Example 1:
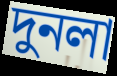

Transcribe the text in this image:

দুনলা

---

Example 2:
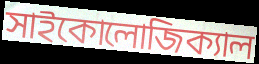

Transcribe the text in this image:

সাইকোলোজিক্যাল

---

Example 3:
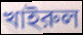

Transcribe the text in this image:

খাইরুল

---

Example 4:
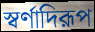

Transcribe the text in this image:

স্বর্ণাদিরূপ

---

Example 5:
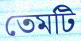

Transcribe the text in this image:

তেমটি